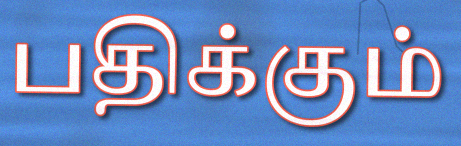
பதிக்கும்